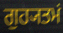
ਗੁਹ੍ਯਤਮਂ